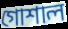
গোশাল